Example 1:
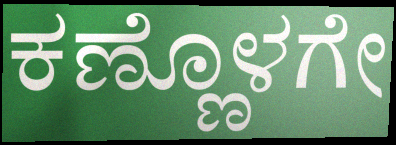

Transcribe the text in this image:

ಕಣ್ಣೊಳಗೇ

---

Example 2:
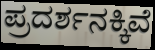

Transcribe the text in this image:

ಪ್ರದರ್ಶನಕ್ಕಿವೆ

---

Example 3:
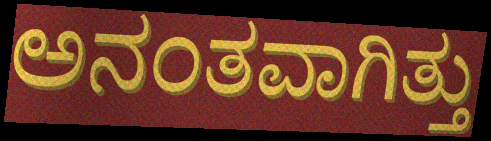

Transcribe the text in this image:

ಅನಂತವಾಗಿತ್ತು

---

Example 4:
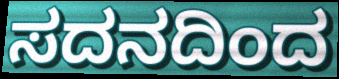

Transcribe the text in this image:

ಸದನದಿಂದ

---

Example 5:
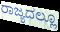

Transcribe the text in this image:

ರಾಜ್ಯದಲ್ಲೂ